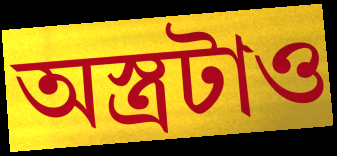
অস্ত্রটাও